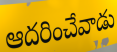
ఆదరించేవాడు